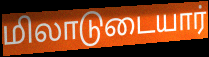
மிலாடுடையார்